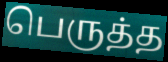
பெருத்த